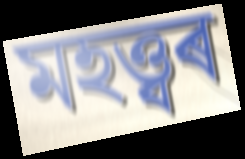
মহত্ত্বৰ